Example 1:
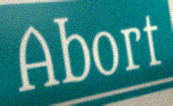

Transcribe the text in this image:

Abort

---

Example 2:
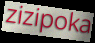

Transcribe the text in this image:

zizipoka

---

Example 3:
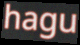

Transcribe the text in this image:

hagu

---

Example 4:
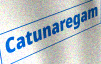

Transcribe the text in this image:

Catunaregam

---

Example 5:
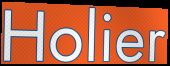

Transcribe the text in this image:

Holier